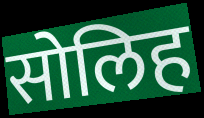
सोलिह